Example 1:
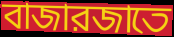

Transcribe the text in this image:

বাজারজাতে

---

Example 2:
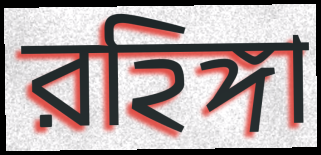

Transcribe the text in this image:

রহিঙ্গা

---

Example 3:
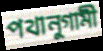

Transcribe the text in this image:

পথানুগামী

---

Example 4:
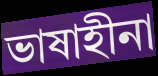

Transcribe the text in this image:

ভাষাহীনা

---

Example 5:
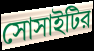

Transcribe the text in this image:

সোসাইটির